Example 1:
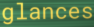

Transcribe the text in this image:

glances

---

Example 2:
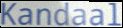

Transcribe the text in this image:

Kandaal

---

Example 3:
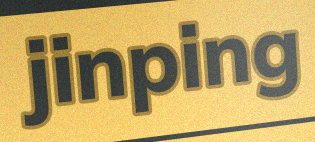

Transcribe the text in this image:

jinping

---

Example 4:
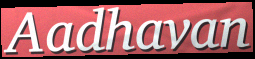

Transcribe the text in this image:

Aadhavan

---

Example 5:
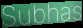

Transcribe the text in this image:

Subhas